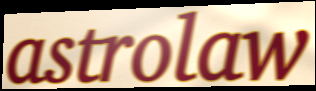
astrolaw